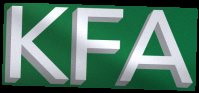
KFA